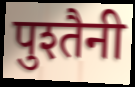
पुश्तैनी